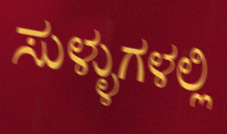
ಸುಳ್ಳುಗಳಲ್ಲಿ